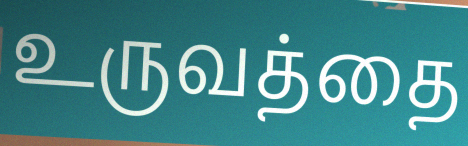
உருவத்தை